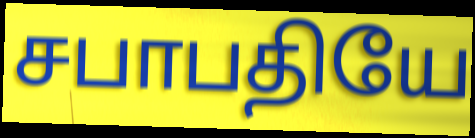
சபாபதியே